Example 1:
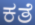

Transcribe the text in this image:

ಕತೆ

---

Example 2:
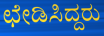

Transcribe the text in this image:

ಛೇಡಿಸಿದ್ದರು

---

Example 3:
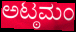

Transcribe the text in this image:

ಅಟ್ಠಮಂ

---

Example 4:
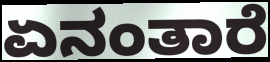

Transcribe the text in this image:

ಏನಂತಾರೆ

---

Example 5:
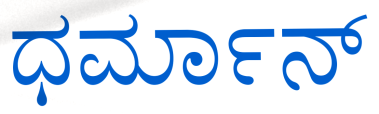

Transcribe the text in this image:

ಧರ್ಮಾನ್